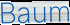
Baum